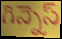
గిన్నెస్